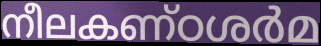
നീലകണ്ഠശർമ